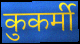
कुकर्मी